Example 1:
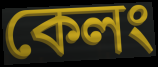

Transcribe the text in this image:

কেলং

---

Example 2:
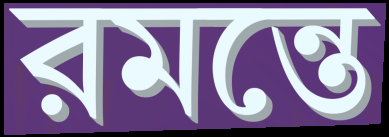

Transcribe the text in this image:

রমন্তে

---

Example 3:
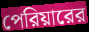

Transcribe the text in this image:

পেরিয়ারের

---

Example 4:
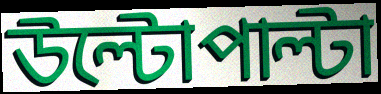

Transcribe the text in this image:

উল্টোপাল্টা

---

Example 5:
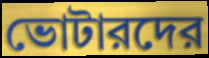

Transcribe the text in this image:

ভোটারদের